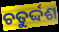
ଚତୁର୍ଦ୍ଦଶ